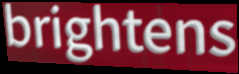
brightens